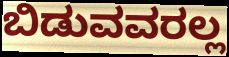
ಬಿಡುವವರಲ್ಲ